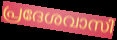
പ്രദേശവാസി